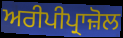
ਅਰੀਪੀਪ੍ਰਾਜ਼ੋਲ